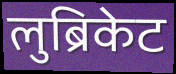
लुब्रिकेट